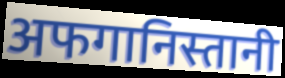
अफगानिस्तानी